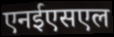
एनईएसएल